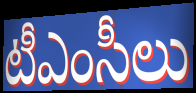
టీఎంసీలు